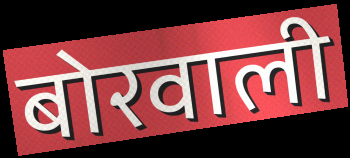
बोरवाली